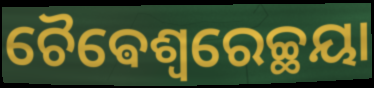
ଚୈଵେଶ୍ଵରେଚ୍ଛୟା